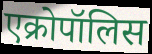
एक्रोपॉलिस